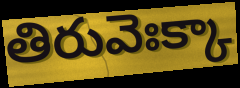
తిరువెఃక్కా